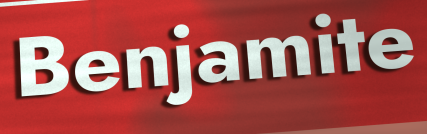
Benjamite